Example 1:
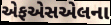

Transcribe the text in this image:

એફએસએલના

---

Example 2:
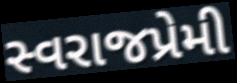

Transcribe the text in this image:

સ્વરાજપ્રેમી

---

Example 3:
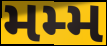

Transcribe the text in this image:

મમ્મ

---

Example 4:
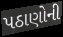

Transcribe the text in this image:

પઠાણોની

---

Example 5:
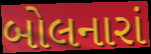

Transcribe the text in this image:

બોલનારાં